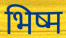
भिष्म